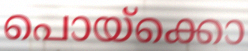
പൊയ്ക്കൊ